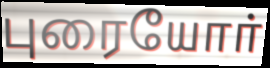
புரையோர்